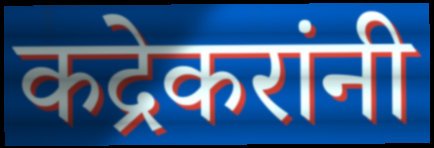
कद्रेकरांनी